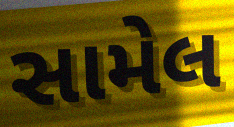
સામેલ